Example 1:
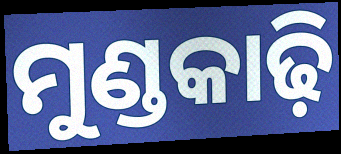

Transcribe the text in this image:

ମୁଣ୍ଡକାଢ଼ି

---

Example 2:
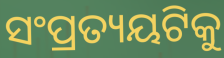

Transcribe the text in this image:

ସଂପ୍ରତ୍ୟୟଟିକୁ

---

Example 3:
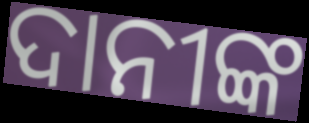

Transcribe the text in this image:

ଦାନୀଙ୍କ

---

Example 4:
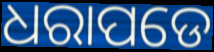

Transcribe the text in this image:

ଧରାପଡେ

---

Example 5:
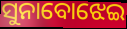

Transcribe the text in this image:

ସୁନାବୋଝେଇ